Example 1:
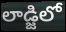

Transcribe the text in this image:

లాడ్జిలో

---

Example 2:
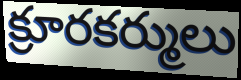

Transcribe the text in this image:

క్రూరకర్ములు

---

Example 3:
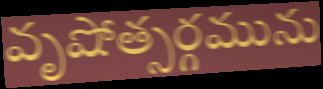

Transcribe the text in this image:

వృషోత్సర్గమును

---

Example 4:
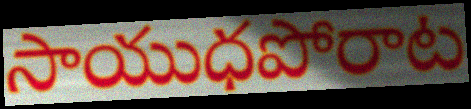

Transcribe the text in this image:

సాయుధపోరాట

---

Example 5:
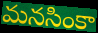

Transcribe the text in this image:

మనసింకా